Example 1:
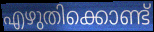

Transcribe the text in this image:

എഴുതിക്കൊണ്ട്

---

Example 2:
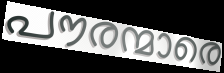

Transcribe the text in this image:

പൗരന്മാരെ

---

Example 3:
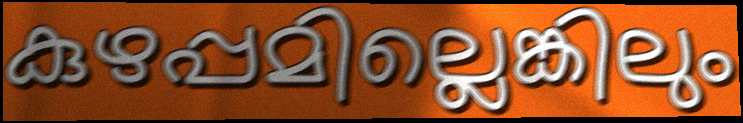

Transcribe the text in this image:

കുഴപ്പമില്ലെങ്കിലും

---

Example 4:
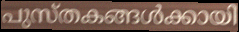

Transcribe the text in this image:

പുസ്തകങ്ങൾക്കായി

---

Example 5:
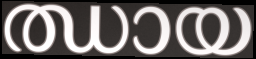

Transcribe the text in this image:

ഝായ